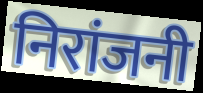
निरांजनी